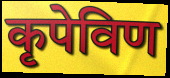
कृपेविण